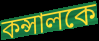
কন্সালকে